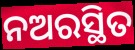
ନଅରସ୍ଥିତ